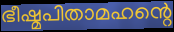
ഭീഷ്മപിതാമഹന്റെ